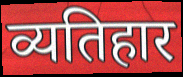
व्यतिहार